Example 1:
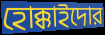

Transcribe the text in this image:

হোক্কাইদোর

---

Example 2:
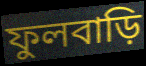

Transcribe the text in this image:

ফুলবাড়ি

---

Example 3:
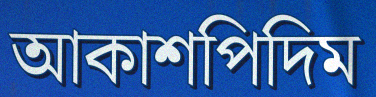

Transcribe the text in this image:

আকাশপিদিম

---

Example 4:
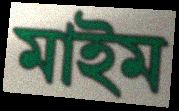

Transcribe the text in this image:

মাইম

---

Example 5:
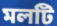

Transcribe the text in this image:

মলটি